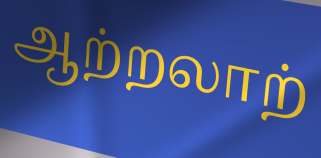
ஆற்றலாற்